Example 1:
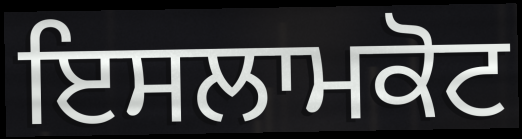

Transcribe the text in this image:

ਇਸਲਾਮਕੋਟ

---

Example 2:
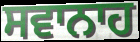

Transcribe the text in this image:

ਸਵਾਨਾਹ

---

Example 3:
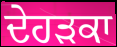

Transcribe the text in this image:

ਦੇਹੜਕਾ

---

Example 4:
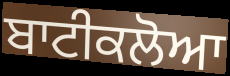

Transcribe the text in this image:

ਬਾਟੀਕਲੋਆ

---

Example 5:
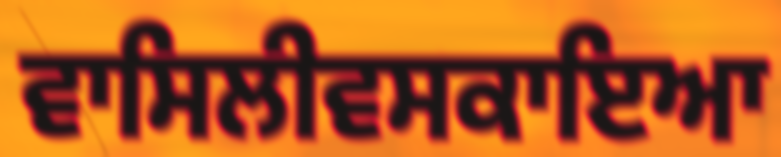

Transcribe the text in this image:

ਵਾਸਿਲੀਵਸਕਾਇਆ